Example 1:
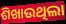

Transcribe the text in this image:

ଶିଖାଉଥିଲା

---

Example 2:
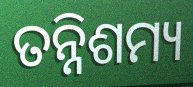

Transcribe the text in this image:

ତନ୍ନିଶମ୍ୟ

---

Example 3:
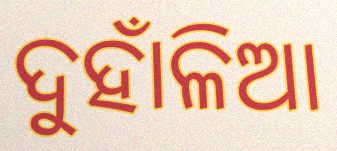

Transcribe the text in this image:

ଦୁହାଁଳିଆ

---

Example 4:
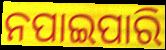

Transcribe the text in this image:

ନପାଇପାରି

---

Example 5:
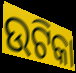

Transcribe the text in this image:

ଉଟିକା